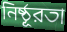
নিষ্ঠূরতা